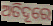
ଅତିଦୂରେ